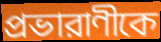
প্রভারাণীকে